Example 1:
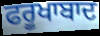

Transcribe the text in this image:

ਫਰੂਖਾਬਾਦ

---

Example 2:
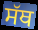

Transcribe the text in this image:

ਸੱਥ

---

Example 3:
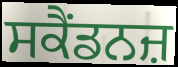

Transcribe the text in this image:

ਸਕੈਂਡਨਜ਼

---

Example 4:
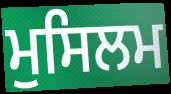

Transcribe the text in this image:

ਮੁਸਿਲਮ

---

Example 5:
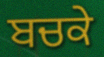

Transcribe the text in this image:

ਬਚਕੇ